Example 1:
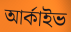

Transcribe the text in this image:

আৰ্কাইভ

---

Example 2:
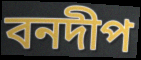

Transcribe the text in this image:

বনদীপ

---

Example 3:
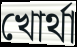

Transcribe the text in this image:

খোৰ্থা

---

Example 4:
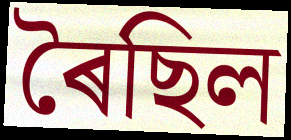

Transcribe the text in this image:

ৰৈছিল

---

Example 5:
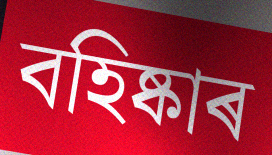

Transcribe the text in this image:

বহিষ্কাৰ